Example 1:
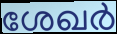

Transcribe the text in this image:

ശേഖർ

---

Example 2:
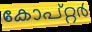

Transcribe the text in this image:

കോപ്റ്റർ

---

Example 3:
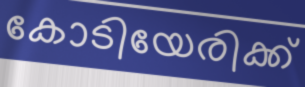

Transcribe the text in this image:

കോടിയേരിക്ക്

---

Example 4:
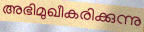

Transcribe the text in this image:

അഭിമുഖീകരിക്കുന്നു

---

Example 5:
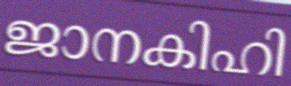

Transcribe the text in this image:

ജാനകിഹി